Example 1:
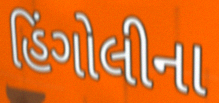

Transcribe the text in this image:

હિંગોલીના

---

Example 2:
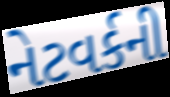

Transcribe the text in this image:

નેટવર્કની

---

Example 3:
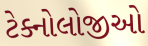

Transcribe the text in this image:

ટેક્નોલોજીઓ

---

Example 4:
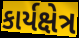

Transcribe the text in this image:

કાર્યક્ષેત્ર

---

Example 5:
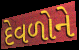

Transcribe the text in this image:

દેવળોને